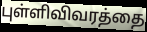
புள்ளிவிவரத்தை